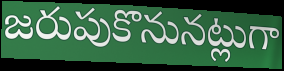
జరుపుకొనునట్లుగా